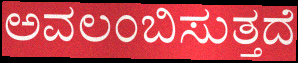
ಅವಲಂಬಿಸುತ್ತದೆ